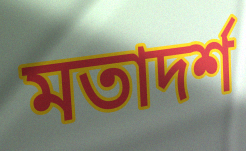
মতাদর্শ